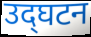
उद्घटन